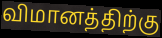
விமானத்திற்கு